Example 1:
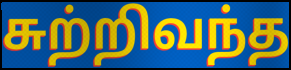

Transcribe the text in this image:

சுற்றிவந்த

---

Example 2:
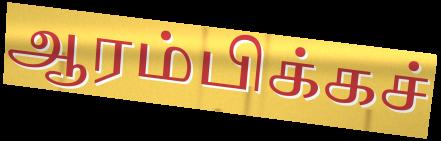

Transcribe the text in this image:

ஆரம்பிக்கச்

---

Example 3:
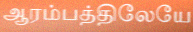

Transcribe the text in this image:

ஆரம்பத்திலேயே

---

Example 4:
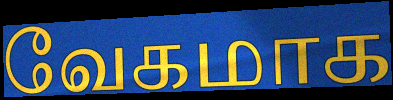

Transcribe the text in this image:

வேகமாக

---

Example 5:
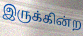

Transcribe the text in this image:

இருக்கின்ற